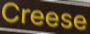
Creese